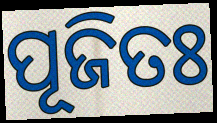
ପୂଜିତଃ